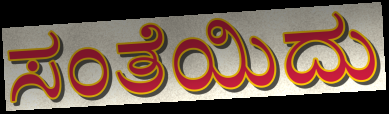
ಸಂತೆಯಿದು